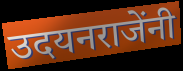
उदयनराजेंनी